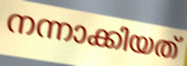
നന്നാക്കിയത്